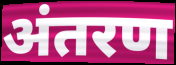
अंतरण